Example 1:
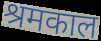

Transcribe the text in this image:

श्रमकाल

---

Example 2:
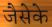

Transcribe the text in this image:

जैसेके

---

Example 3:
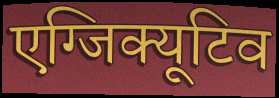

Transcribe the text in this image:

एग्जिक्यूटिव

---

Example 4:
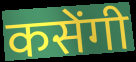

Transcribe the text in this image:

कसेंगी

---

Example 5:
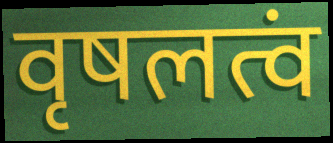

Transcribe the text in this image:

वृषलत्वं